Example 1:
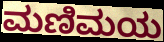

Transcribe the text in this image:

ಮಣಿಮಯ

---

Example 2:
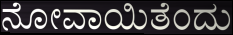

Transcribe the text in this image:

ನೋವಾಯಿತೆಂದು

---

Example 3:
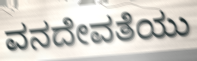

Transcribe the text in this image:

ವನದೇವತೆಯು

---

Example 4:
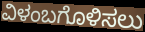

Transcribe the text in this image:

ವಿಳಂಬಗೊಳಿಸಲು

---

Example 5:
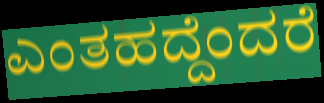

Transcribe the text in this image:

ಎಂತಹದ್ದೆಂದರೆ